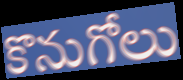
కొనుగోలు